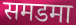
समडमा